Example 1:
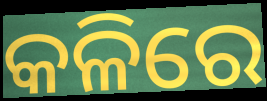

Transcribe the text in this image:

କଳିରେ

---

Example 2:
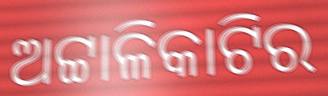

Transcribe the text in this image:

ଅଟ୍ଟାଳିକାଟିର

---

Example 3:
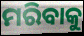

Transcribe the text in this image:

ମରିବାକୁ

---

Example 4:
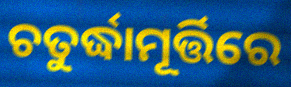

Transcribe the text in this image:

ଚତୁର୍ଦ୍ଧାମୂର୍ତ୍ତିରେ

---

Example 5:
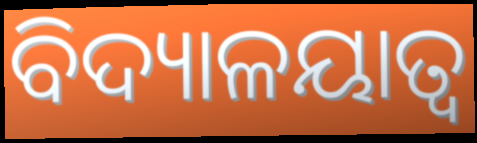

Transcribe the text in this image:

ବିଦ୍ୟାଳୟାତ୍ବ